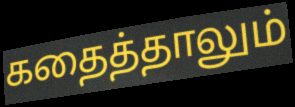
கதைத்தாலும்